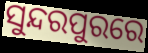
ସୁନ୍ଦରପୁରରେ